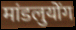
मांडलुयोंग